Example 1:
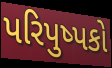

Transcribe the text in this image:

પરિપુષ્પકો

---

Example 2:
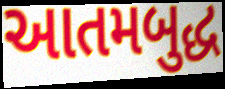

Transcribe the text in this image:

આતમબુદ્ધ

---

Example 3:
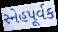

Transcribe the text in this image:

સ્નેહપૂર્વક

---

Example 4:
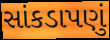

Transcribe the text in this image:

સાંકડાપણું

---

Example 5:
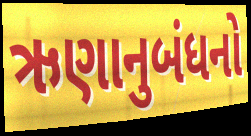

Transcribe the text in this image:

ઋણાનુબંધનો